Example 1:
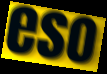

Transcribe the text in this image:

eso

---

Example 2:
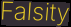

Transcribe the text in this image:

Falsity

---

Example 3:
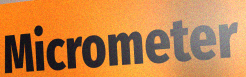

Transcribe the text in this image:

Micrometer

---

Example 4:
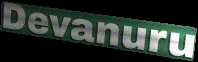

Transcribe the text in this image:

Devanuru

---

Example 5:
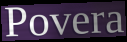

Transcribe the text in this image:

Povera